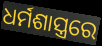
ଧର୍ମଶାସ୍ତ୍ରରେ